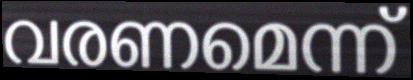
വരണമെന്ന്